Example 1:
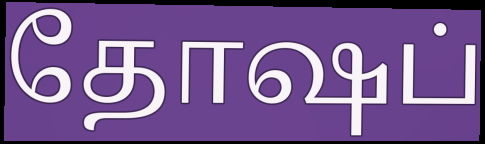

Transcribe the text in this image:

தோஷப்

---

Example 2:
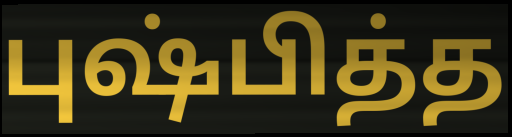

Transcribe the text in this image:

புஷ்பித்த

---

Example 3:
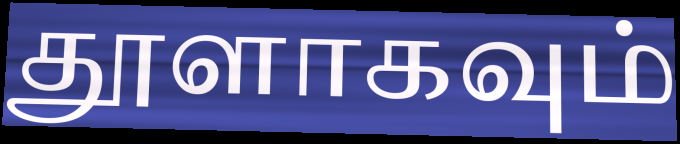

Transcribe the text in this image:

தூளாகவும்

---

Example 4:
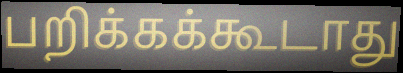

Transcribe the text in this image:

பறிக்கக்கூடாது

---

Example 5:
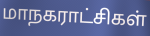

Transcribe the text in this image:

மாநகராட்சிகள்